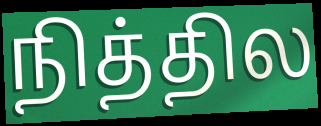
நித்தில